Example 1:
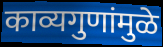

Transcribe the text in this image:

काव्यगुणांमुळे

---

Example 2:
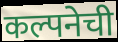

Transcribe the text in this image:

कल्पनेची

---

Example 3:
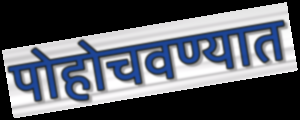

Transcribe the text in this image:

पोहोचवण्यात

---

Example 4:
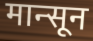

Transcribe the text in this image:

मान्सून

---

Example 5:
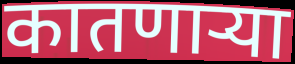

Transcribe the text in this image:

कातणाऱ्या